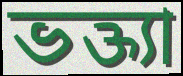
ভক্ত্যা